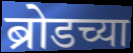
ब्रोडच्या